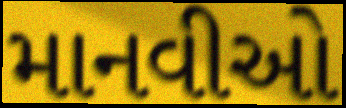
માનવીઓ